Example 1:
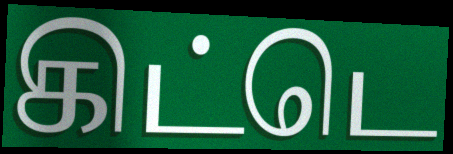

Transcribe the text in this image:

கிட்டெ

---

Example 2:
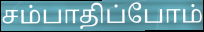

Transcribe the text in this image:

சம்பாதிப்போம்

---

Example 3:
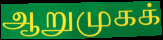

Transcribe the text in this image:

ஆறுமுகக்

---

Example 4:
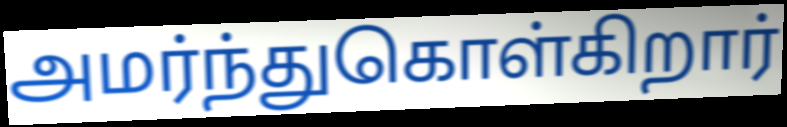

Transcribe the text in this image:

அமர்ந்துகொள்கிறார்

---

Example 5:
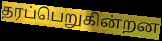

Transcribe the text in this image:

தரப்பெறுகின்றன